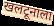
खलटूनाला